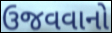
ઉજવવાનો